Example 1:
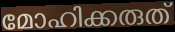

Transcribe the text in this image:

മോഹിക്കരുത്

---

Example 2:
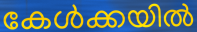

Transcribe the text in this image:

കേൾക്കയിൽ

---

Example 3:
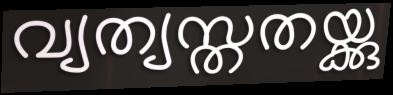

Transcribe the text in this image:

വ്യത്യസ്തതയ്ക്കു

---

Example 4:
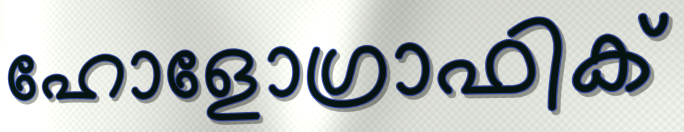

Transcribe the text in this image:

ഹോളോഗ്രാഫിക്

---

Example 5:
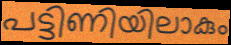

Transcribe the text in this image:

പട്ടിണിയിലാകും